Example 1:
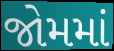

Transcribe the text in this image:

જોમમાં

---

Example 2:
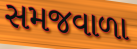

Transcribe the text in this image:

સમજવાળા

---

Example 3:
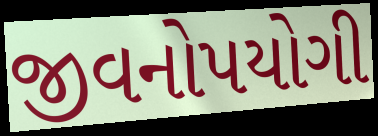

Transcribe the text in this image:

જીવનોપયોગી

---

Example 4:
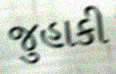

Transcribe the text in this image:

જુહાકી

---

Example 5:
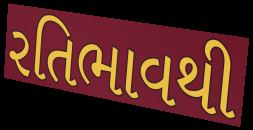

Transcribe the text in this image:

રતિભાવથી